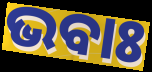
ଭବାଃ